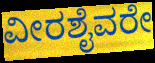
ವೀರಶೈವರೇ